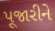
પૂજારીને